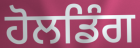
ਹੋਲਡਿੰਗ